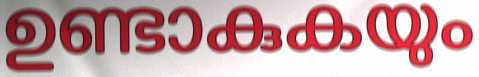
ഉണ്ടാകുകയും